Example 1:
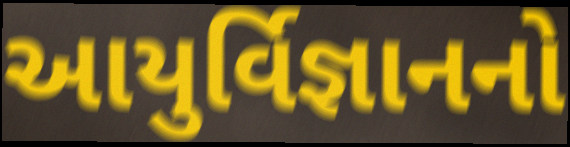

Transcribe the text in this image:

આયુર્વિજ્ઞાનનો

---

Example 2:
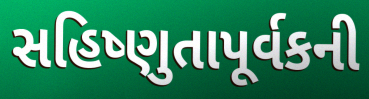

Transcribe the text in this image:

સહિષ્ણુતાપૂર્વકની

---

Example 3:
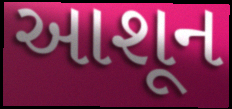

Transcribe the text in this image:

આશૂન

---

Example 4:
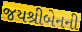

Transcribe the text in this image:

જયશ્રીબેનની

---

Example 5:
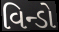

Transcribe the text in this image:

વિન્ડો